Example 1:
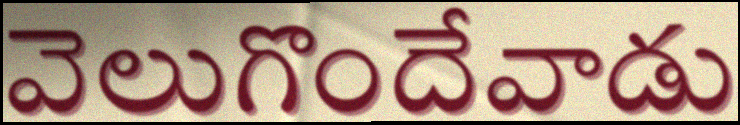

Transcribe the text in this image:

వెలుగొందేవాడు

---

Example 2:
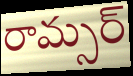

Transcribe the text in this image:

రామ్సర్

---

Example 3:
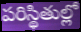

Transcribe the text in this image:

పరిస్థితుల్లో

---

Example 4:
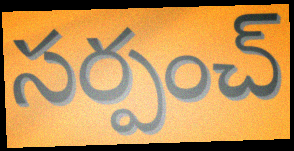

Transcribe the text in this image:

సర్పంచ్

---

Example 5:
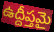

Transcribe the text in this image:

ఉద్దీప్తమై